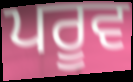
ਪਰੂਵ